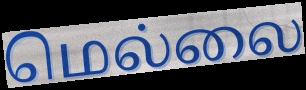
மெல்லை